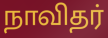
நாவிதர்